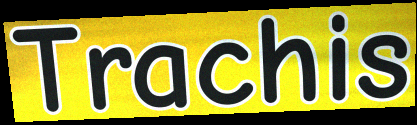
Trachis